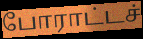
போராட்டச்